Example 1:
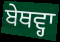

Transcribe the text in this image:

ਬੇਥਵ੍ਹਾ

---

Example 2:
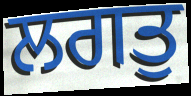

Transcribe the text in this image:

ਲਗਤੁ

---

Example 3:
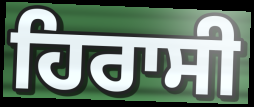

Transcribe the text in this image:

ਹਿਰਾਸੀ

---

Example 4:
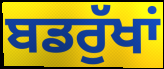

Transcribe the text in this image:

ਬਡਰੁੱਖਾਂ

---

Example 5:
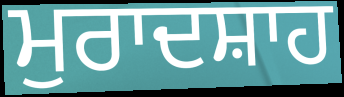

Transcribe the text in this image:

ਮੁਰਾਦਸ਼ਾਹ